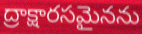
ద్రాక్షారసమైనను